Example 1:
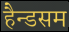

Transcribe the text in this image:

हैन्डसम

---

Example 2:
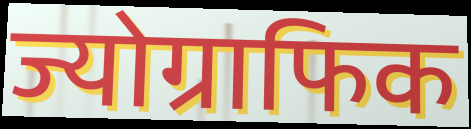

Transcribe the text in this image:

ज्योग्राफिक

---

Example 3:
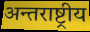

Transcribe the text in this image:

अन्तराष्ट्रीय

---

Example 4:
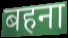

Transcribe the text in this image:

बहना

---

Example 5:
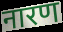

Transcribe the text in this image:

नारण